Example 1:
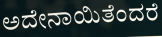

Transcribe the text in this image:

ಅದೇನಾಯಿತೆಂದರೆ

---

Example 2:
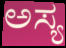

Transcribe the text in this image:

ಅಸ್ಯ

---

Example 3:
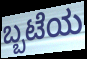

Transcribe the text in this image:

ಬ್ಬಟೆಯ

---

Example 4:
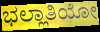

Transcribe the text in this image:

ಭಲ್ಲಾತಿಯೋ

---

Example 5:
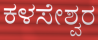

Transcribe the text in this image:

ಕಳಸೇಶ್ವರ